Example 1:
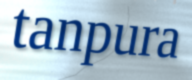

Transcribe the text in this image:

tanpura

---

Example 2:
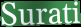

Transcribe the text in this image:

Surati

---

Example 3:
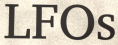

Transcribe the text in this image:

LFOs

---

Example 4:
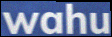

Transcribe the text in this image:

wahu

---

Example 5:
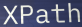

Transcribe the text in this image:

XPath